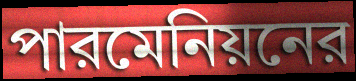
পারমেনিয়নের